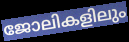
ജോലികളിലും